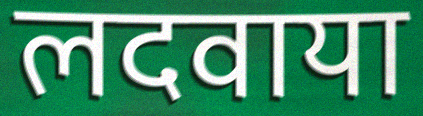
लदवाया